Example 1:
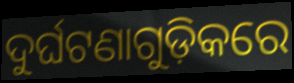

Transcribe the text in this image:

ଦୁର୍ଘଟଣାଗୁଡ଼ିକରେ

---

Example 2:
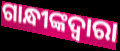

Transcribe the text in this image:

ଗାନ୍ଧୀଙ୍କଦ୍ଵାରା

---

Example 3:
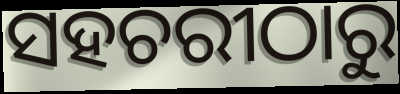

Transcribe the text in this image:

ସହଚରୀଠାରୁ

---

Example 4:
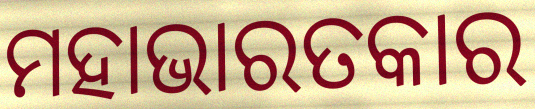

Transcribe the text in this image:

ମହାଭାରତକାର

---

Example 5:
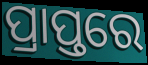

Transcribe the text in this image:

ପ୍ରାପ୍ତରେ